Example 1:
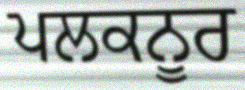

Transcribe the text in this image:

ਪਲਕਨੂਰ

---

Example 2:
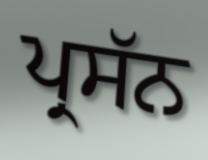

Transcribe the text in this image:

ਪ੍ਰਸੱਨ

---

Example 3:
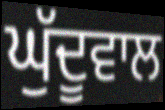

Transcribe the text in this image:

ਘੁੱਦੂਵਾਲ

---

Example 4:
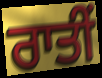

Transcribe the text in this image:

ਰਾਤੀਂ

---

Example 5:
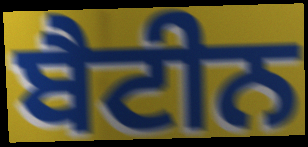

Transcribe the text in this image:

ਬੈਟੀਨ